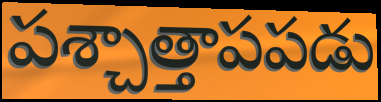
పశ్చాత్తాపపడు